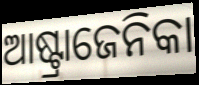
ଆଷ୍ଟ୍ରାଜେନିକା